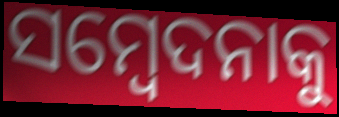
ସମ୍ବେଦନାକୁ